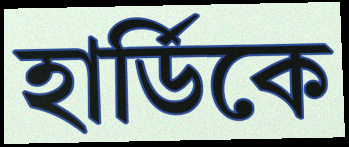
হার্ডিকে